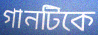
গানটিকে